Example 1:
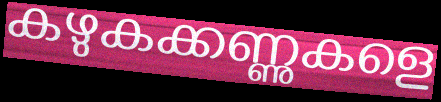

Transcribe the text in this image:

കഴുകക്കണ്ണുകളെ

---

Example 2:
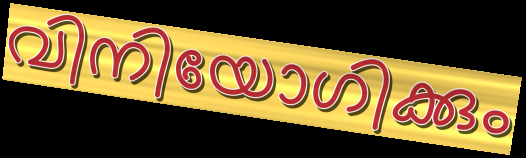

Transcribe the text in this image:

വിനിയോഗിക്കും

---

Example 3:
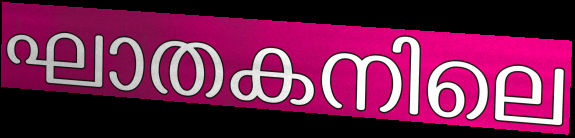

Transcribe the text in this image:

ഘാതകനിലെ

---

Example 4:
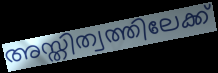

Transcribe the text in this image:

അസ്തിത്വത്തിലേക്ക്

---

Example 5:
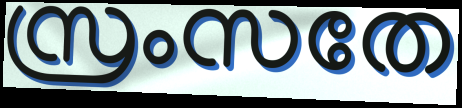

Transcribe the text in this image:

സ്രംസതേ